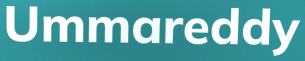
Ummareddy